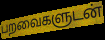
பறவைகளுடன்